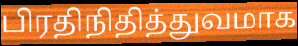
பிரதிநிதித்துவமாக